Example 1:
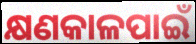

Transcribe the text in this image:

କ୍ଷଣକାଳପାଇଁ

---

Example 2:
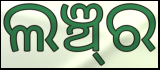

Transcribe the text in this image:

ଲଞ୍ଚ୍‍ର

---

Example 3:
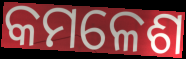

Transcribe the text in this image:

କମଳେଶ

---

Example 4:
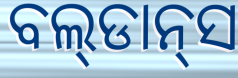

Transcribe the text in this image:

ବଲ୍‌ଡାନ୍‌ସ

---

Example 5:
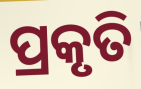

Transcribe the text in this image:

ପ୍ରକୃତି